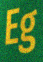
Eg